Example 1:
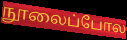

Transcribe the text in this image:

நூலைப்போல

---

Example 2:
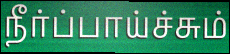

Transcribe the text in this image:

நீர்ப்பாய்ச்சும்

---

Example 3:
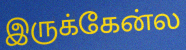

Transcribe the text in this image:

இருக்கேன்ல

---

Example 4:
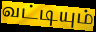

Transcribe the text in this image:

வட்டியும்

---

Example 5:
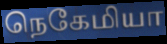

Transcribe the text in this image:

நெகேமியா